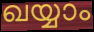
ഖയ്യാം